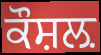
ਕੌਸ਼ਲ਼